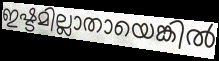
ഇഷ്ടമില്ലാതായെങ്കിൽ